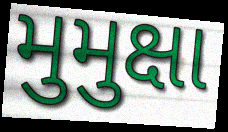
મુમુક્ષા